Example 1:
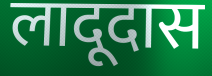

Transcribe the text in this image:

लादूदास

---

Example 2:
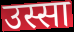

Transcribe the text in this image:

उस्सा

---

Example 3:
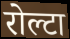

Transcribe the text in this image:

रोल्टा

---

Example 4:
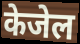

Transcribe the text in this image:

केजेल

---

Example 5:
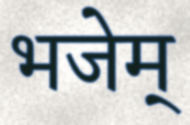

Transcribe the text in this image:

भजेम्